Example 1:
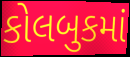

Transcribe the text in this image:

કોલબુકમાં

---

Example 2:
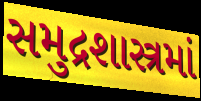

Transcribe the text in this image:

સમુદ્રશાસ્ત્રમાં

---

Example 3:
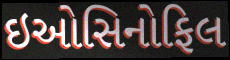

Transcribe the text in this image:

ઇઓસિનોફિલ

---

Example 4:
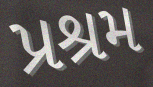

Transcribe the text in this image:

પ્રશ્રમ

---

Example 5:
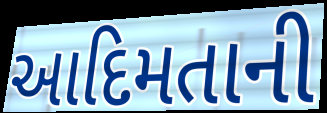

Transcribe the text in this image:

આદિમતાની